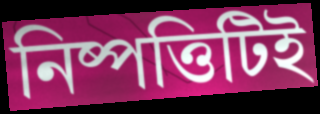
নিষ্পত্তিটিই